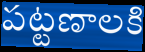
పట్టణాలకి